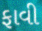
ફાવી